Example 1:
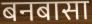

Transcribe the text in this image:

बनबासा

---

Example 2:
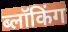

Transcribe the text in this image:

ब्लॉकिंग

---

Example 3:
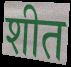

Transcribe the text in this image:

शीत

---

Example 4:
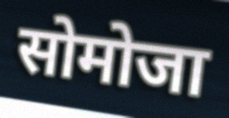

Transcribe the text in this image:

सोमोजा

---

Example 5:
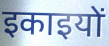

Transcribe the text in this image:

इकाइयों